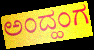
ಅಂದ್ಹಂಗ